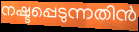
നഷ്ടപ്പെടുന്നതിൻ